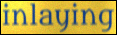
inlaying